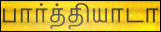
பார்த்தியாடா